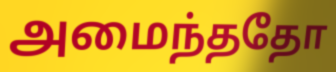
அமைந்ததோ